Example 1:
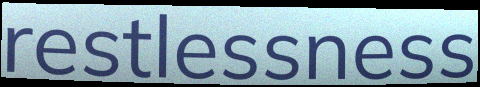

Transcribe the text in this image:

restlessness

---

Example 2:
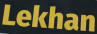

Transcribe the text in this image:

Lekhan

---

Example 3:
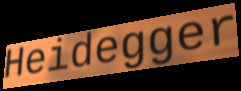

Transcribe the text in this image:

Heidegger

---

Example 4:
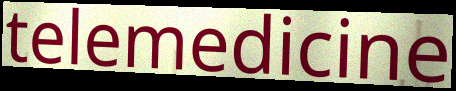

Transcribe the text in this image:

telemedicine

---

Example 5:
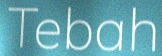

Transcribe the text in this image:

Tebah